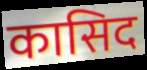
कासिद